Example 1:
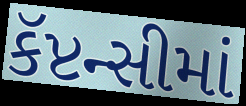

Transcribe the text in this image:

કૅપ્ટન્સીમાં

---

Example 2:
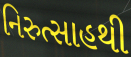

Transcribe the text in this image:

નિરુત્સાહથી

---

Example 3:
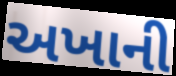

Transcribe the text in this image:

અખાની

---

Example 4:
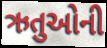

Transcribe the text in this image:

ઋતુઓની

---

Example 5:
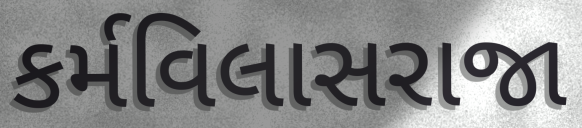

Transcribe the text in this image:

કર્મવિલાસરાજા